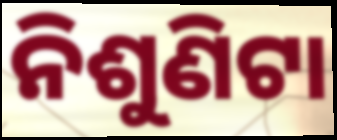
ନିଶୁଣିଟା